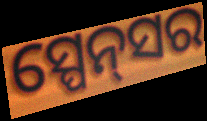
ସ୍ପେନ୍‌ସର